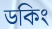
ডকিং